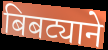
बिबट्याने